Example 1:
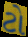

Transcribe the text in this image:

ટો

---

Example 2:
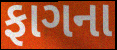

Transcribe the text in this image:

ફાગના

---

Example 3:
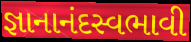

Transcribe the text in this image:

જ્ઞાનાનંદસ્વભાવી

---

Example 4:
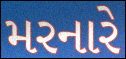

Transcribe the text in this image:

મરનારે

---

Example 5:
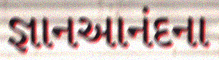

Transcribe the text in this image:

જ્ઞાનઆનંદના